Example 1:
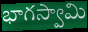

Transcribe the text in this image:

భాగస్వామి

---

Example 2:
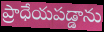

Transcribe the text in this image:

ప్రాధేయపడ్డాను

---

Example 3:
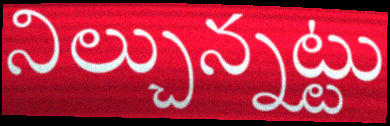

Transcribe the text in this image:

నిల్చున్నట్టు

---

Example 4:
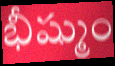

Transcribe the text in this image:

భీష్ముం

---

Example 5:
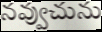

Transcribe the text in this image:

నవ్వుచును